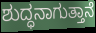
ಶುದ್ಧನಾಗುತ್ತಾನೆ